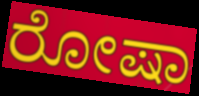
ರೋಷಾ